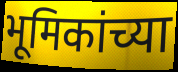
भूमिकांच्या